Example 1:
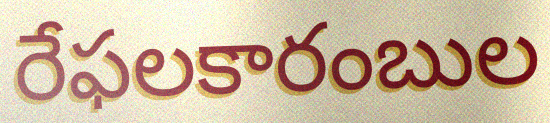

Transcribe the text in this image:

రేఫలకారంబుల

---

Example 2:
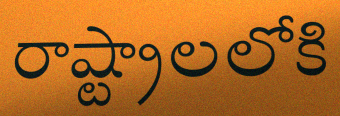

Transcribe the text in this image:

రాష్ట్రాలలోకి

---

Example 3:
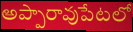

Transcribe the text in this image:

అప్పారావుపేటలో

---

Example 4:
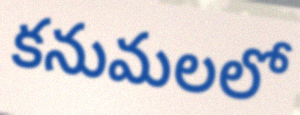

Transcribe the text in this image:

కనుమలలో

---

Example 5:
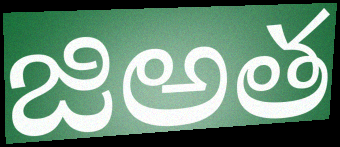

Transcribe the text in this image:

జిఅత